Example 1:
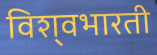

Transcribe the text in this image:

विश्वभारती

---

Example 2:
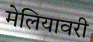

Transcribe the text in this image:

मेलियावरी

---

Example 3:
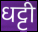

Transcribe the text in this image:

धट्टी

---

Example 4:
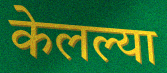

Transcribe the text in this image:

केलल्या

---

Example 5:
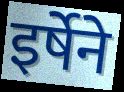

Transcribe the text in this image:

इर्षेने